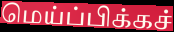
மெய்ப்பிக்கச்